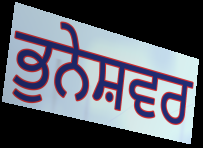
ਭੁਨੇਸ਼ਵਰ